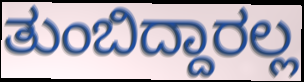
ತುಂಬಿದ್ದಾರಲ್ಲ